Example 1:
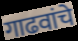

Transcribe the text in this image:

गाढवांचे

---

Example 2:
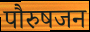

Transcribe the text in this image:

पौरुषजन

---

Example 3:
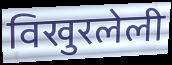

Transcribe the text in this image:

विखुरलेली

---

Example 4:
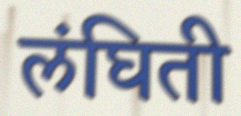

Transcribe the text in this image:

लंघिती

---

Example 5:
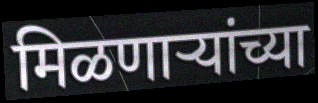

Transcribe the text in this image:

मिळणाऱ्यांच्या